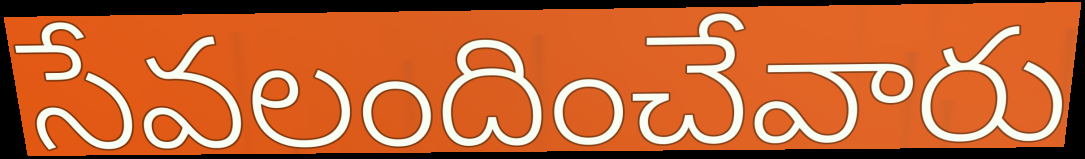
సేవలందించేవారు